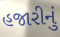
હજારીનું